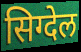
सिग्देल